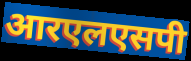
आरएलएसपी